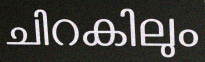
ചിറകിലും